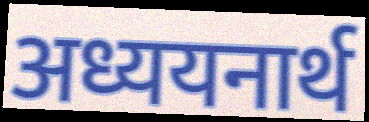
अध्ययनार्थ